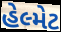
હેલ્મેટ